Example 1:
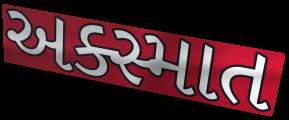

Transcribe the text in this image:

અક્સ્માત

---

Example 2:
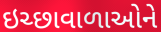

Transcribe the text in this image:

ઇચ્છાવાળાઓને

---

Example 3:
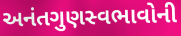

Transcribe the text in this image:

અનંતગુણસ્વભાવોની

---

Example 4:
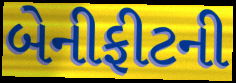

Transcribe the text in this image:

બેનીફીટની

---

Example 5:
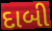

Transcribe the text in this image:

દાબી